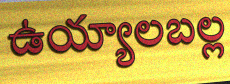
ఉయ్యాలబల్ల